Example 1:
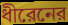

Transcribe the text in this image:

ধীরেনের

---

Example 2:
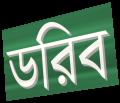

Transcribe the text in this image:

ডরিব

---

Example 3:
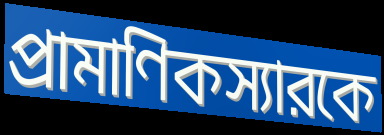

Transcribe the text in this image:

প্রামাণিকস্যারকে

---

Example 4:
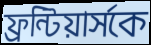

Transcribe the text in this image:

ফ্রন্টিয়ার্সকে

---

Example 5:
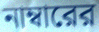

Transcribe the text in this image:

নাম্বারের